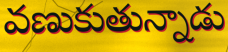
వణుకుతున్నాడు